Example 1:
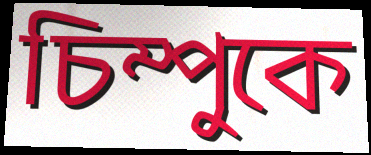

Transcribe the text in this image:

চিম্পুকে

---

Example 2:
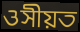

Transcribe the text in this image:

ওসীয়ত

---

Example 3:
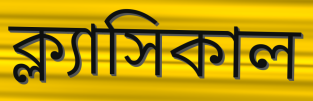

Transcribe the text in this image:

ক্ল্যাসিকাল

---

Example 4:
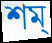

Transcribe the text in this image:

শম্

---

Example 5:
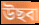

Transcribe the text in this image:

উছবা